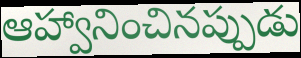
ఆహ్వానించినప్పుడు